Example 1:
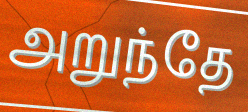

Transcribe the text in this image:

அறுந்தே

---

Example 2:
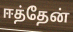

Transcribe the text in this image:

ஈத்தேன்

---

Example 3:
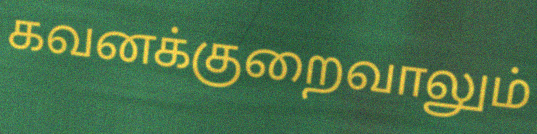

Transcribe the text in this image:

கவனக்குறைவாலும்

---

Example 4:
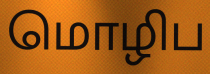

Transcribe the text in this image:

மொழிப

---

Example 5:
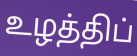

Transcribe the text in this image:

உழத்திப்